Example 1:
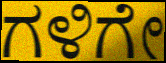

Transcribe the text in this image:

ಗಳಿಗೇ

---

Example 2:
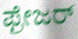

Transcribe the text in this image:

ಫ್ರೇಜರ್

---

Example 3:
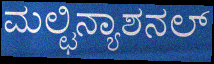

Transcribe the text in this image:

ಮಲ್ಟಿನ್ಯಾಶನಲ್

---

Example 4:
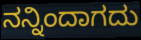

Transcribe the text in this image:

ನನ್ನಿಂದಾಗದು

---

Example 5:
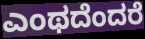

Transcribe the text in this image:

ಎಂಥದೆಂದರೆ